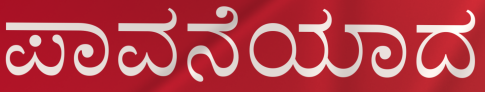
ಪಾವನೆಯಾದ